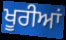
ਖੂਰੀਆਂ